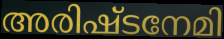
അരിഷ്ടനേമി